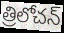
త్రిలోచన్